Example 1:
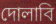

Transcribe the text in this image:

দোলাবি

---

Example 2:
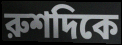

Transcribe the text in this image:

রুশদিকে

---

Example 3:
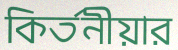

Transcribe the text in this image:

কির্তনীয়ার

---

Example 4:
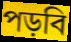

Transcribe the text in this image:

পড়বি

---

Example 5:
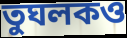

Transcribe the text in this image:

তুঘলকও